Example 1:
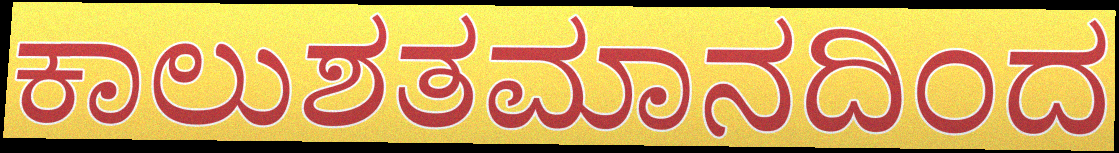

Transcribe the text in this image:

ಕಾಲುಶತಮಾನದಿಂದ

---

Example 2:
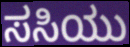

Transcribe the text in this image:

ಸಸಿಯು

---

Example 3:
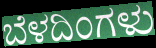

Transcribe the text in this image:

ಬೆಳದಿಂಗಳು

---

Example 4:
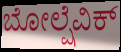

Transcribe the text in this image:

ಬೋಲ್ಷೆವಿಕ್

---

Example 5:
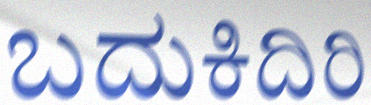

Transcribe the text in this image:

ಬದುಕಿದಿರಿ